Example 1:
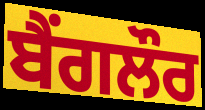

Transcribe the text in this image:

ਬੈਂਗਲੌਰ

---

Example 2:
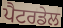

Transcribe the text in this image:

ਪੈਟਰਡੇਲ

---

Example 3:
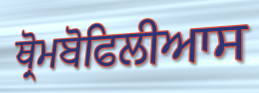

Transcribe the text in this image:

ਥ੍ਰੋਮਬੋਫਿਲੀਆਸ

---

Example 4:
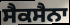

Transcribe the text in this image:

ਸੈਕਸੈਨਾ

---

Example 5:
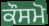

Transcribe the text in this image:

ਕੌਸਮੋ